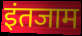
इंतजाम